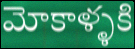
మోకాళ్ళకి